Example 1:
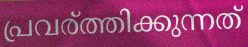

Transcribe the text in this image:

പ്രവര്ത്തിക്കുന്നത്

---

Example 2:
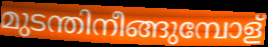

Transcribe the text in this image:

മുടന്തിനീങ്ങുമ്പോള്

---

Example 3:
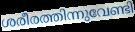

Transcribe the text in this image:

ശരീരത്തിന്നുവേണ്ടി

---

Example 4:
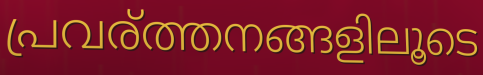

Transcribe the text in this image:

പ്രവര്ത്തനങ്ങളിലൂടെ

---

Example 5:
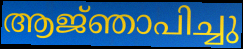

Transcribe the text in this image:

ആജ്‌ഞാപിച്ചു